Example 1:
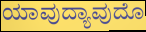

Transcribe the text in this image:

ಯಾವುದ್ಯಾವುದೊ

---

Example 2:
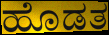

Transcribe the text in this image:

ಹೊಡತ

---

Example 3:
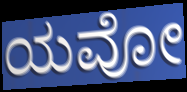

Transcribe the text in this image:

ಯವೋ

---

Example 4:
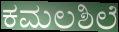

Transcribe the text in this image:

ಕಮಲಶಿಲೆ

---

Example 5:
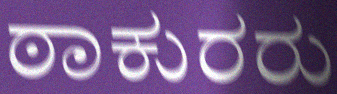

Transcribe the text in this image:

ಠಾಕುರರು